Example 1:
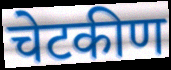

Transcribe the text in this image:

चेटकीण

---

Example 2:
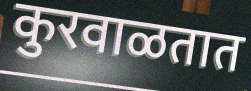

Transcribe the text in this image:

कुरवाळतात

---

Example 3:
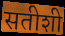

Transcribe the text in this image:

सतीशी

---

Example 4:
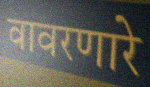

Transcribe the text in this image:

वावरणारे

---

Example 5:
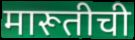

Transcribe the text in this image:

मारूतीची